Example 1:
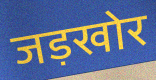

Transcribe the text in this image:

जड़खोर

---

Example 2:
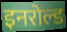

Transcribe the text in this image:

इनरोल्ड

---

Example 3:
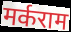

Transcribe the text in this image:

मर्कराम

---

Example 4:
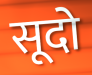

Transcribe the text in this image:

सूदो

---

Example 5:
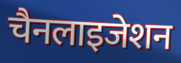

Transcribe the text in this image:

चैनलाइजेशन